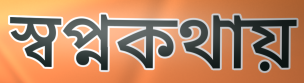
স্বপ্নকথায়